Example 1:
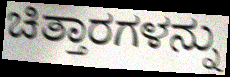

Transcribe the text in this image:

ಚಿತ್ತಾರಗಳನ್ನು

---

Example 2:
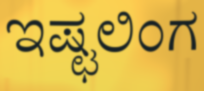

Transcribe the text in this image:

ಇಷ್ಟಲಿಂಗ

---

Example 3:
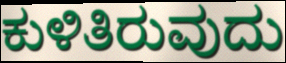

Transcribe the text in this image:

ಕುಳಿತಿರುವುದು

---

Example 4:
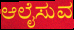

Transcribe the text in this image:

ಆಲೈಸುವ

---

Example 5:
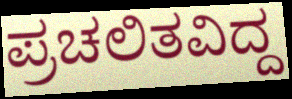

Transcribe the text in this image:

ಪ್ರಚಲಿತವಿದ್ದ